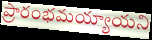
ప్రారంభమయ్యాయని